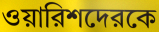
ওয়ারিশদেরকে